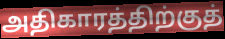
அதிகாரத்திற்குத்